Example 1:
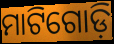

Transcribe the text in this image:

ମାଟିଗୋଡ଼ି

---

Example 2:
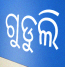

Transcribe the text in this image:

ଗୁଡୁଲି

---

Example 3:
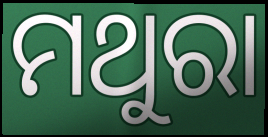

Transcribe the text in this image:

ମଥୁରା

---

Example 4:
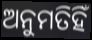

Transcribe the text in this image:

ଅନୁମତିହିଁ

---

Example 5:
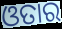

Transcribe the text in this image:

ଓତାର